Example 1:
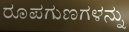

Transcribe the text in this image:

ರೂಪಗುಣಗಳನ್ನು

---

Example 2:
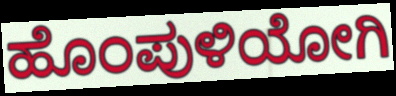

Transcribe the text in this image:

ಹೊಂಪುಳಿಯೋಗಿ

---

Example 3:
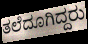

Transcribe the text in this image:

ತಲೆದೂಗಿದ್ದರು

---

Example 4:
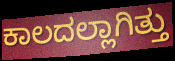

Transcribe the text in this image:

ಕಾಲದಲ್ಲಾಗಿತ್ತು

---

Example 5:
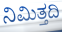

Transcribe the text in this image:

ನಿಮಿತ್ತದಿ